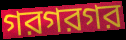
গরগরগর